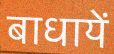
बाधायें